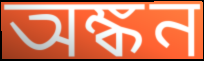
অঙ্কন